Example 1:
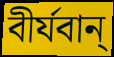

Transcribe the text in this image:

বীর্যবান্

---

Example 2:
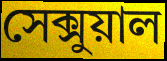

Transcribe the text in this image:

সেক্সুয়াল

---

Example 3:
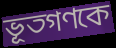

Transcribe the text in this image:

ভূতগণকে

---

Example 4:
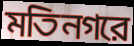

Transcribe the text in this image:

মতিনগরে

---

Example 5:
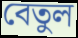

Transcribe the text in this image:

বেতুল